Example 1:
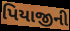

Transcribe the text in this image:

પિયાજીની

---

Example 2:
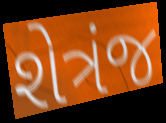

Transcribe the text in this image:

શેત્રંજ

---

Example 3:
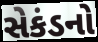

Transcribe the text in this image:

સેકંડનો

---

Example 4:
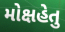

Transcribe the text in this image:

મોક્ષહેતુ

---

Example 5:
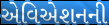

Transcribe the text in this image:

એવિએશનની